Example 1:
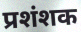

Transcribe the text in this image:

प्रशंशक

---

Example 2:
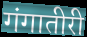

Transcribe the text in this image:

गंगातीरी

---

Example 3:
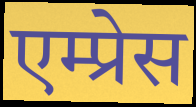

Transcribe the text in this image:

एम्प्रेस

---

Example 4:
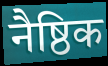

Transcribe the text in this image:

नैष्ठिक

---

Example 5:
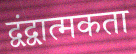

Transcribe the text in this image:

द्वंद्वात्मकता